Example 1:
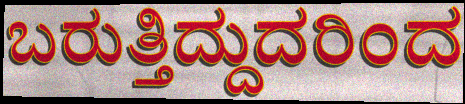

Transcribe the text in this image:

ಬರುತ್ತಿದ್ದುದರಿಂದ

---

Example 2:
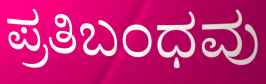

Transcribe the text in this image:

ಪ್ರತಿಬಂಧವು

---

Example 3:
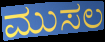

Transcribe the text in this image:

ಮುಸಲ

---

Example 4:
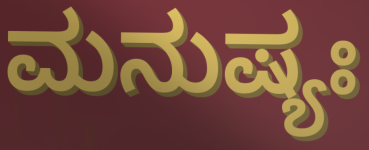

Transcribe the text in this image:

ಮನುಷ್ಯಃ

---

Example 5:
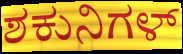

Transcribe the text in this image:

ಶಕುನಿಗಳ್